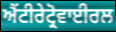
ਐਂਟੀਰੇਟ੍ਰੋਵਾਈਰਲ